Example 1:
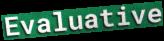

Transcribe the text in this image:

Evaluative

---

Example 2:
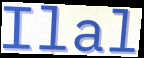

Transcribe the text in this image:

Ilal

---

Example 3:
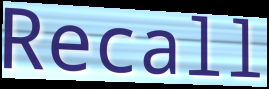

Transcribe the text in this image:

Recall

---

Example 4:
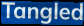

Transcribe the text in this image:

Tangled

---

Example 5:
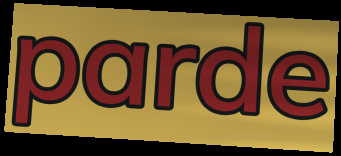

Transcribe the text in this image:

parde